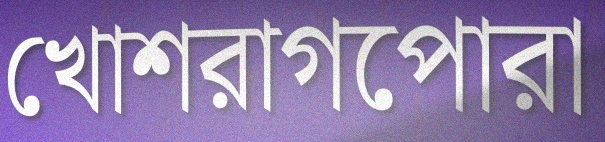
খোশরাগপোরা